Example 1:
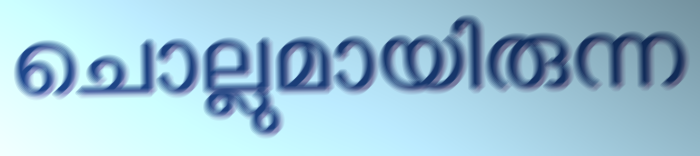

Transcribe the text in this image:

ചൊല്ലുമായിരുന്ന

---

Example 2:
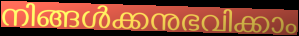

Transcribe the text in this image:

നിങ്ങൾക്കനുഭവിക്കാം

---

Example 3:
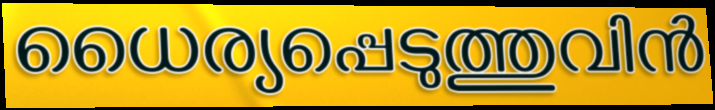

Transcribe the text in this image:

ധൈര്യപ്പെടുത്തുവിൻ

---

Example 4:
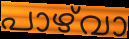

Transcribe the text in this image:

പാഴ്‌വാ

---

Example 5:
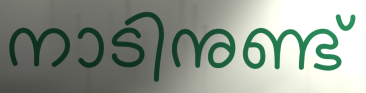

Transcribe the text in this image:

നാടിനുണ്ട്